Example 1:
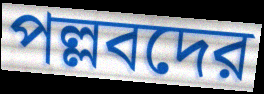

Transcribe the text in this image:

পল্লবদের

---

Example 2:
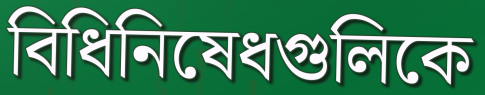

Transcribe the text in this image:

বিধিনিষেধগুলিকে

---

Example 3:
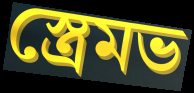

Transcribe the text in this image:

স্ত্রেমভ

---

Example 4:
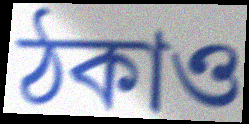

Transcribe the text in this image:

ঠকাও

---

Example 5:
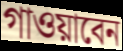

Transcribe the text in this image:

গাওয়াবেন